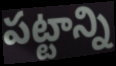
పట్టాన్ని